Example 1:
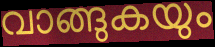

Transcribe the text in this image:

വാങ്ങുകയും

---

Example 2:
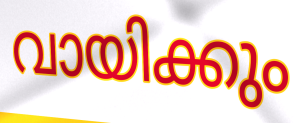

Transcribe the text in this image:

വായിക്കും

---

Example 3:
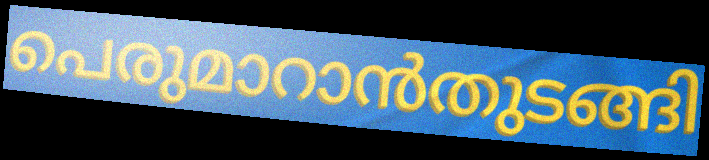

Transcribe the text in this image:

പെരുമാറാൻതുടങ്ങി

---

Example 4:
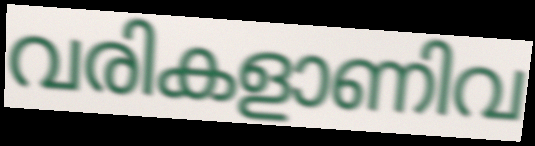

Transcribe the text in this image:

വരികളാണിവ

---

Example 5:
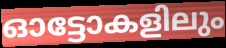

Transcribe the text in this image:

ഓട്ടോകളിലും